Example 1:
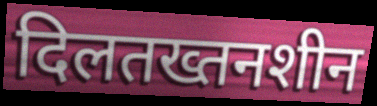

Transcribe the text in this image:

दिलतख्तनशीन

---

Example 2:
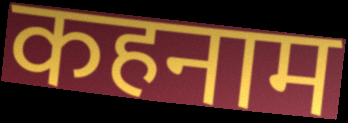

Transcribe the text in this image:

कहनाम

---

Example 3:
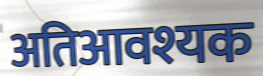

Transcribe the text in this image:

अतिआवश्यक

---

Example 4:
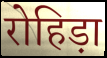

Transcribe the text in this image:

रोहिड़ा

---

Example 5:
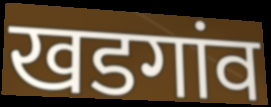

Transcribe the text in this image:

खडगांव